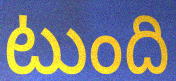
టుంది